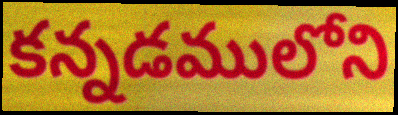
కన్నడములోని